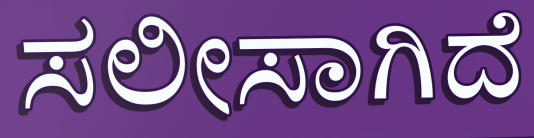
ಸಲೀಸಾಗಿದೆ